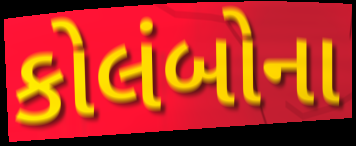
કોલંબોના